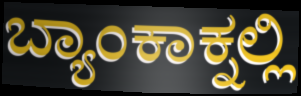
ಬ್ಯಾಂಕಾಕ್ನಲ್ಲಿ